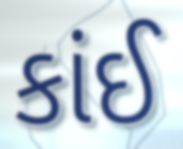
કાંઈ